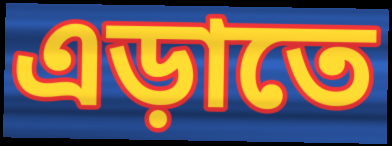
এড়াতে